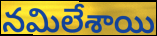
నమిలేశాయి